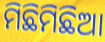
ମିଛିମିଛିଆ